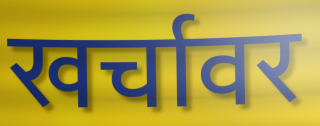
खर्चावर